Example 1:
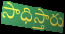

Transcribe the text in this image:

సాధిస్తారు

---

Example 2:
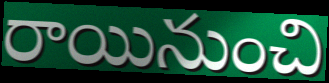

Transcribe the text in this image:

రాయినుంచి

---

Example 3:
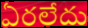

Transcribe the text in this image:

ఏరలేదు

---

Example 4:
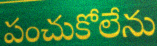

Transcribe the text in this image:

పంచుకోలేను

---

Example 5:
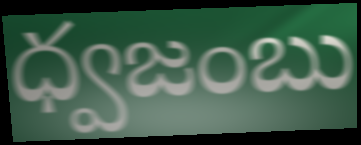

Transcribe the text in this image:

ధ్వజంబు